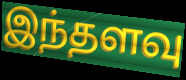
இந்தளவு